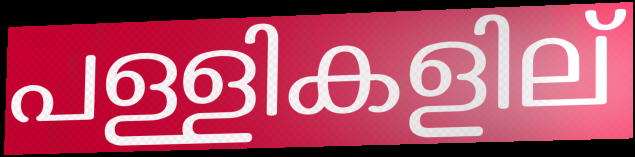
പള്ളികളില്